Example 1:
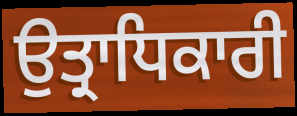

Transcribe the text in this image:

ਉਤ੍ਰਾਧਿਕਾਰੀ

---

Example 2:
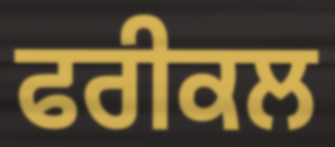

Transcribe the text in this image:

ਫਰੀਕਲ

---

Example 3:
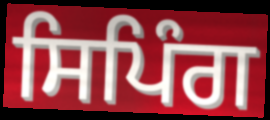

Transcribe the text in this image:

ਸਿਪਿੰਗ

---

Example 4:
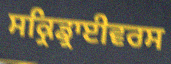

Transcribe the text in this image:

ਸਕ੍ਰਿਡ੍ਰਾਈਵਰਸ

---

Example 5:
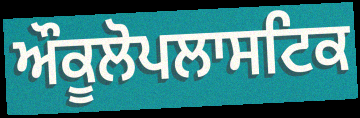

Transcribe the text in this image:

ਔਕੂਲੋਪਲਾਸਟਿਕ